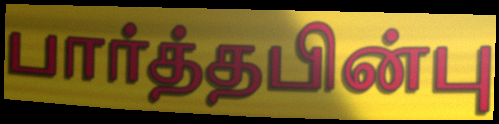
பார்த்தபின்பு